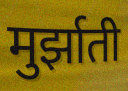
मुर्झाती